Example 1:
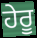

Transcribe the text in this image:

ਹੇਰੂ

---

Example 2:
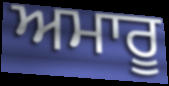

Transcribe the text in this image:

ਅਮਾਰੂ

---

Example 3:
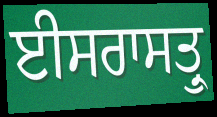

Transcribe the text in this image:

ਈਸਰਾਸਤ੍ਰੁ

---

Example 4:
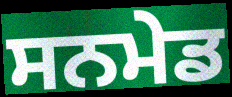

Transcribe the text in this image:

ਸਨਮੇਡ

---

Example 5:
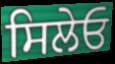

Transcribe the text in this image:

ਸਿਲੇਓ